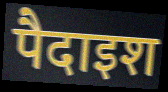
पैदाइश